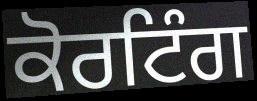
ਕੋਰਟਿੰਗ